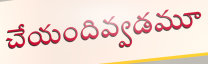
చేయందివ్వడమూ